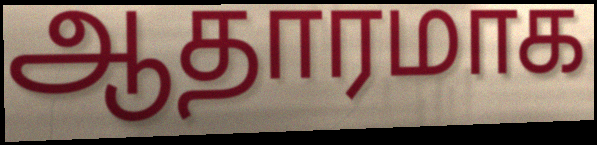
ஆதாரமாக